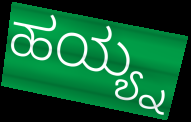
ಹಯ್ಯ್ನ